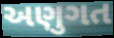
અણુગત